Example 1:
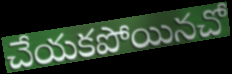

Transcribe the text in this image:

చేయకపోయినచో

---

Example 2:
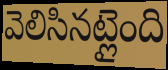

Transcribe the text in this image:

వెలిసినట్లైంది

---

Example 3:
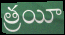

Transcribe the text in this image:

త్రయీ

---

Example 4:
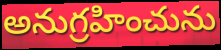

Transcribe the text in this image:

అనుగ్రహించును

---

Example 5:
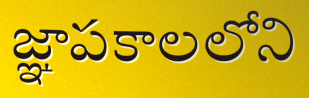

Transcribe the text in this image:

జ్ఞాపకాలలోని